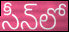
సీన్‌లో